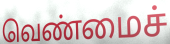
வெண்மைச்